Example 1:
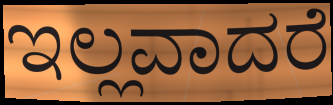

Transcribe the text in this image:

ಇಲ್ಲವಾದರೆ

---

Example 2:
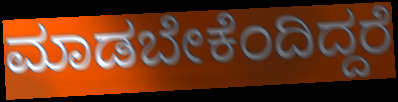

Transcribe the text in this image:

ಮಾಡಬೇಕೆಂದಿದ್ದರೆ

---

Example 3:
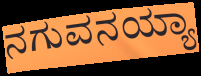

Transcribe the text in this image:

ನಗುವನಯ್ಯಾ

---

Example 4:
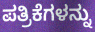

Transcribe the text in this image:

ಪತ್ರಿಕೆಗಳನ್ನು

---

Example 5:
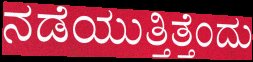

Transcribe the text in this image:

ನಡೆಯುತ್ತಿತ್ತೆಂದು